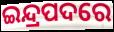
ଇନ୍ଦ୍ରପଦରେ